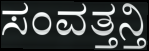
ಸಂವತ್ತನ್ತಿ